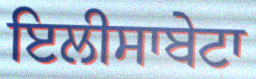
ਇਲੀਸਾਬੇਟਾ